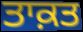
ਤਾਕ਼ਤ